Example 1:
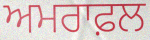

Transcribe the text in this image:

ਅਮਰਾਫ਼ਲ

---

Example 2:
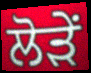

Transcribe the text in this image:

ਲੋੜੇਂ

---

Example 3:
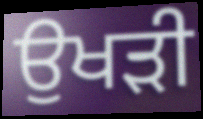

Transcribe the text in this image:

ਉਖੜੀ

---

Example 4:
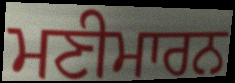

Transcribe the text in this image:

ਮਣੀਮਾਰਨ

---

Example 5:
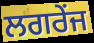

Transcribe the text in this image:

ਲਗਰੇਂਜ